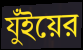
যুঁইয়ের